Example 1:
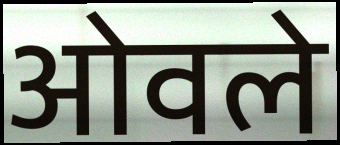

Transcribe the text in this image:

ओवले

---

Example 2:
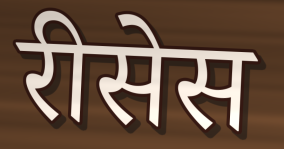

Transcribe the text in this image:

रीसेस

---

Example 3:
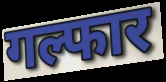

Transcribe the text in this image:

गल्फार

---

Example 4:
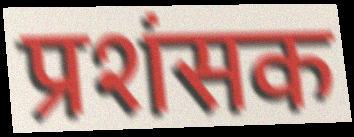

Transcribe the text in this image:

प्रशंसक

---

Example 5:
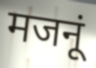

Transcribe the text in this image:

मजनूं